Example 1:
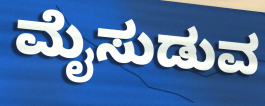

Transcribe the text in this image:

ಮೈಸುಡುವ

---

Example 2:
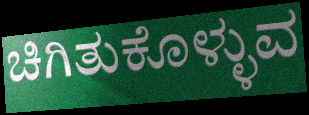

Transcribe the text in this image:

ಚಿಗಿತುಕೊಳ್ಳುವ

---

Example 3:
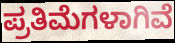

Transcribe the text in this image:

ಪ್ರತಿಮೆಗಳಾಗಿವೆ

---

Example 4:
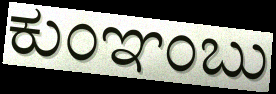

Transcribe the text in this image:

ಕುಂಞಂಬು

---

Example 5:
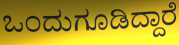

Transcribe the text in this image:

ಒಂದುಗೂಡಿದ್ದಾರೆ